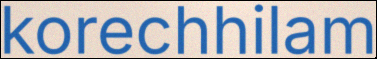
korechhilam